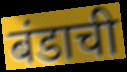
बंडाची